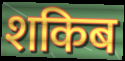
शकिब